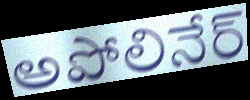
అపోలినేర్